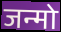
जन्मो